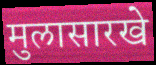
मुलासारखे